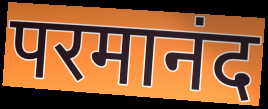
परमानंद